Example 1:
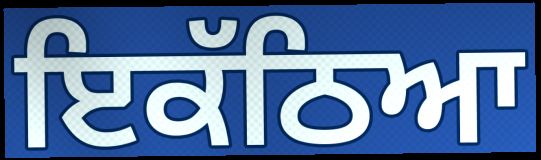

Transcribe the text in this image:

ਇਕੱਠਿਆ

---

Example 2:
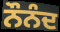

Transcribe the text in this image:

ਨੌਨੰਦ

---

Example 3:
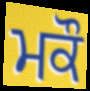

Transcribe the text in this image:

ਮਕੌ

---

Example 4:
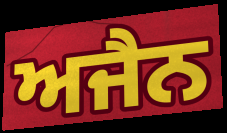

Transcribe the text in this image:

ਅਜੈਨ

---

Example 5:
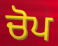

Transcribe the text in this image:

ਚੋਪ